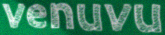
venuvu